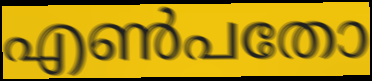
എൺപതോ